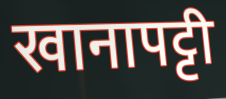
खानापट्टी